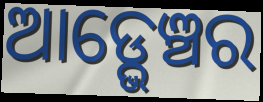
ଆଡ୍ଭେଞ୍ଚର